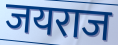
जयराज